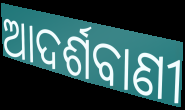
ଆଦର୍ଶବାଣୀ